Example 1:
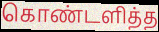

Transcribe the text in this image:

கொண்டளித்த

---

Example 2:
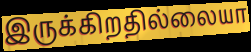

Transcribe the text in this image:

இருக்கிறதில்லையா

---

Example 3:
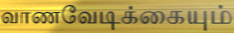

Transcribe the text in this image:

வாணவேடிக்கையும்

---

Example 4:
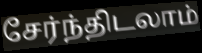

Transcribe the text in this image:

சேர்ந்திடலாம்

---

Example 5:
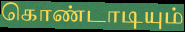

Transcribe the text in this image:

கொண்டாடியும்